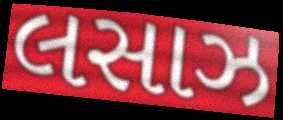
લસાઝ